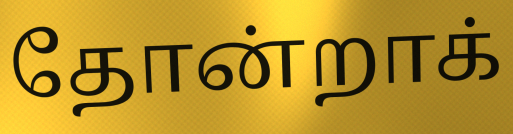
தோன்றாக்